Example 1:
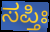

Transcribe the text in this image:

ಸಪ್ತಿಃ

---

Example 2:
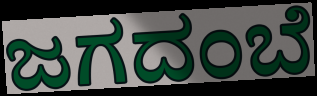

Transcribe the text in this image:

ಜಗದಂಬೆ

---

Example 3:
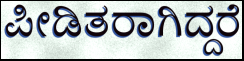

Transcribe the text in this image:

ಪೀಡಿತರಾಗಿದ್ದರೆ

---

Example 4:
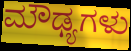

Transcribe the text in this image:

ಮೌಢ್ಯಗಳು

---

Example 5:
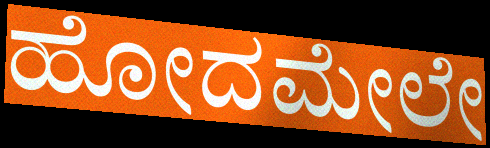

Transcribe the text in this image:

ಹೋದಮೇಲೇ